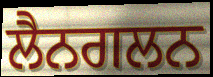
ਲੈਨਗਲਨ